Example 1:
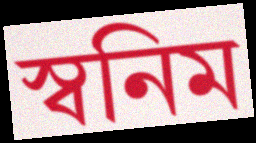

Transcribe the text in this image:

স্বনিম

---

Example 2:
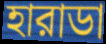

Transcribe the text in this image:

হারাডা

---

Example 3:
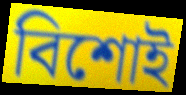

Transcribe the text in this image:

বিশোই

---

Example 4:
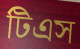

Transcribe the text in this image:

টিএস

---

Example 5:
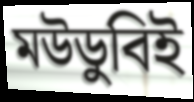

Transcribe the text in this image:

মউডুবিই